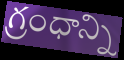
గ్రంధాన్ని